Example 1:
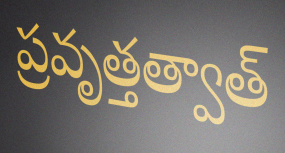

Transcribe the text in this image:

ప్రవృత్తత్వాత్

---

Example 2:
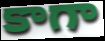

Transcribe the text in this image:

కాగా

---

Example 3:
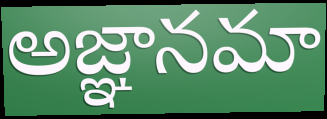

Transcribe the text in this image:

అజ్ఞానమా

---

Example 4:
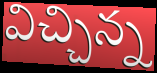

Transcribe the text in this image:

విచ్చిన్న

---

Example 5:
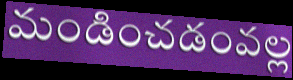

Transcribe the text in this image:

మండించడంవల్ల